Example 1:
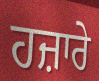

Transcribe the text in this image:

ਹਜ਼ਾਰੇ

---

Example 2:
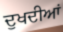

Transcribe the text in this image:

ਦੁਖਦੀਆਂ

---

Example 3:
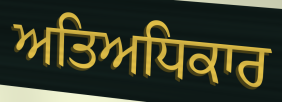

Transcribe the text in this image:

ਅਤਿਅਧਿਕਾਰ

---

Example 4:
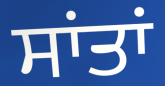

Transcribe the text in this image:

ਸਾਂਤਾਂ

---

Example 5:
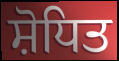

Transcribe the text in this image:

ਸ਼ੋਧਿਤ